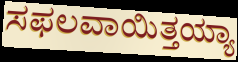
ಸಫಲವಾಯಿತ್ತಯ್ಯಾ